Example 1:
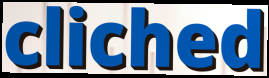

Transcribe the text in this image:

cliched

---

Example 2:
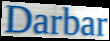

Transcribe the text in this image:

Darbar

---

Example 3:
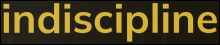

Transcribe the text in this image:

indiscipline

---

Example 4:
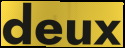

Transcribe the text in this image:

deux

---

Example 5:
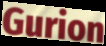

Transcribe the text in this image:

Gurion